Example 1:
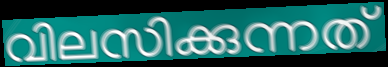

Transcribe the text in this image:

വിലസിക്കുന്നത്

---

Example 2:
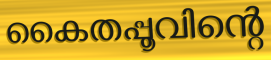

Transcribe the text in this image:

കൈതപ്പൂവിന്റെ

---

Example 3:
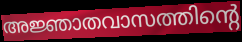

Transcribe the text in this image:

അജ്ഞാതവാസത്തിന്റെ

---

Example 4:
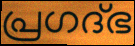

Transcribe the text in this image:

പ്രഗദ്ഭ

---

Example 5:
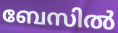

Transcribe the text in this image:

ബേസിൽ